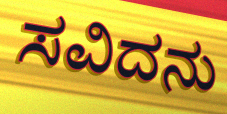
ಸವಿದನು